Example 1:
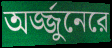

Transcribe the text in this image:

অর্জ্জুনেরে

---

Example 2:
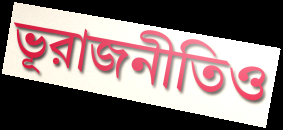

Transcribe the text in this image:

ভূরাজনীতিও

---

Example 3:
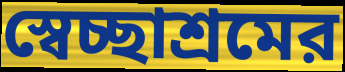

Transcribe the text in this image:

স্বেচ্ছাশ্রমের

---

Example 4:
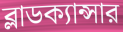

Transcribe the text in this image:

ব্লাডক্যান্সার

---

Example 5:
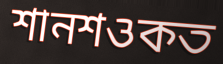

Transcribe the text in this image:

শানশওকত